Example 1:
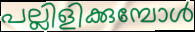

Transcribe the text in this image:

പല്ലിളിക്കുമ്പോൾ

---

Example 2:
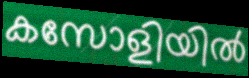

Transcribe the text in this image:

കസോളിയിൽ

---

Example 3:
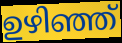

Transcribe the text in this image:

ഉഴിഞ്ഞ്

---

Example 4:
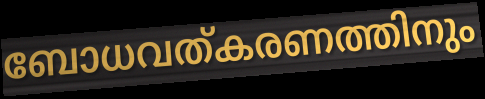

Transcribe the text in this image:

ബോധവത്കരണത്തിനും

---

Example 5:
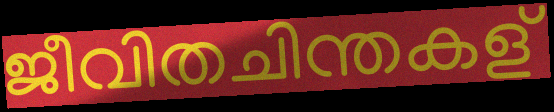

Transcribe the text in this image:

ജീവിതചിന്തകള്